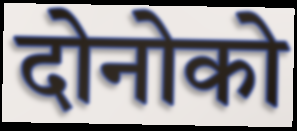
दोनोको